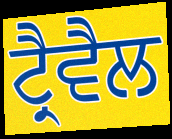
ਟ੍ਰੈਵੈਲ